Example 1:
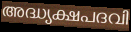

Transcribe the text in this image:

അദ്ധ്യക്ഷപദവി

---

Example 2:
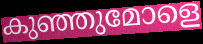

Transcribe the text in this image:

കുഞ്ഞുമോളെ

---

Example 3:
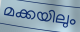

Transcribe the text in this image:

മക്കയിലും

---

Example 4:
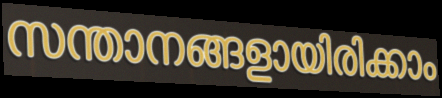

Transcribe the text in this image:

സന്താനങ്ങളായിരിക്കാം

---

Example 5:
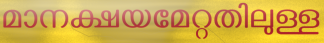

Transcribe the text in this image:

മാനക്ഷയമേറ്റതിലുള്ള